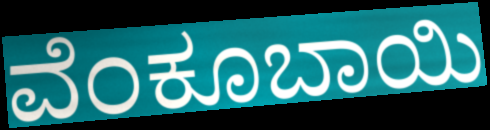
ವೆಂಕೂಬಾಯಿ